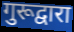
गुरूद्वारा